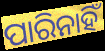
ପାରିନାହିଁ